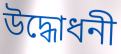
উদ্ধোধনী